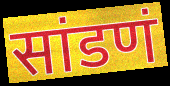
सांडणं